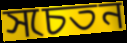
সচেতন